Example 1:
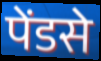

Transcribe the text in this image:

पेंडसे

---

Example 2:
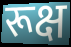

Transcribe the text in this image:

रूक्ष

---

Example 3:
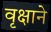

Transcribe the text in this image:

वृक्षाने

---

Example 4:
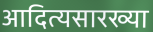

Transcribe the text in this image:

आदित्यसारख्या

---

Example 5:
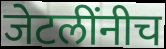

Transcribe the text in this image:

जेटलींनीच